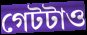
গেটটাও